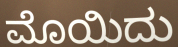
ಮೊಯಿದು